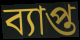
ব্যাপ্ত